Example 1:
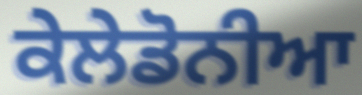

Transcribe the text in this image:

ਕੇਲੇਡੋਨੀਆ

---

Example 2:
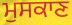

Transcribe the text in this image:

ਮੁਸਕਾਣ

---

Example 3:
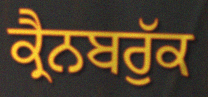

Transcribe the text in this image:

ਕ੍ਰੈਨਬਰੁੱਕ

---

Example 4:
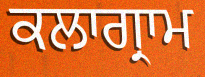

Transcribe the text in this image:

ਕਲਾਗ੍ਰਾਮ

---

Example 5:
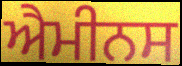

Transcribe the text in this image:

ਐਮੀਨਸ